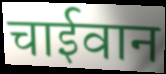
चाईवान